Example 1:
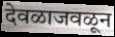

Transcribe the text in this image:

देवळाजवळून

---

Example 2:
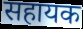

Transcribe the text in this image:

सहायक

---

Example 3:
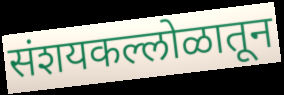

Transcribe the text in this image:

संशयकल्लोळातून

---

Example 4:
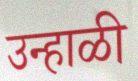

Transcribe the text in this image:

उन्हाळी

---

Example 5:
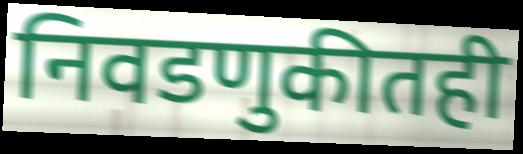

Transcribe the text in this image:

निवडणुकीतही